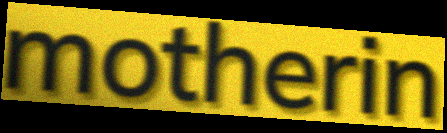
motherin